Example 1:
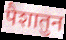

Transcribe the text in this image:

पैशातुन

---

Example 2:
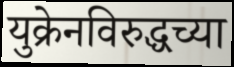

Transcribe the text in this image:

युक्रेनविरुद्धच्या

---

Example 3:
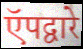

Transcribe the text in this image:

ऍपद्वारे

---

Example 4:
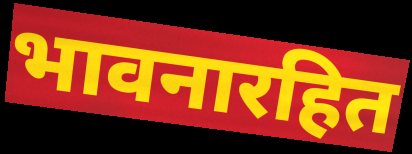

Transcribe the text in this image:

भावनारहित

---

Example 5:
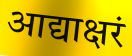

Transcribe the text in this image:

आद्याक्षरं